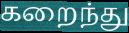
கறைந்து